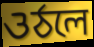
ওঠলে